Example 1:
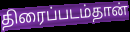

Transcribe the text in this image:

திரைப்படம்தான்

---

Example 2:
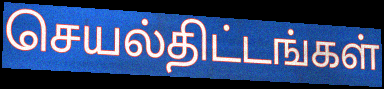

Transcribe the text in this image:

செயல்திட்டங்கள்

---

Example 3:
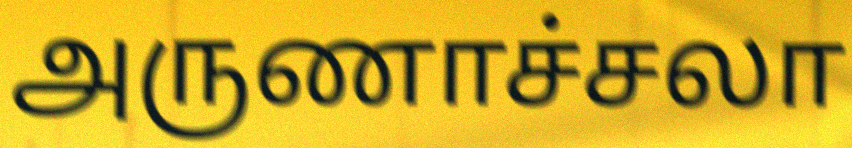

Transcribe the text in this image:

அருணாச்சலா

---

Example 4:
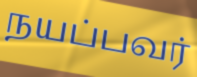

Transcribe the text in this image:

நயப்பவர்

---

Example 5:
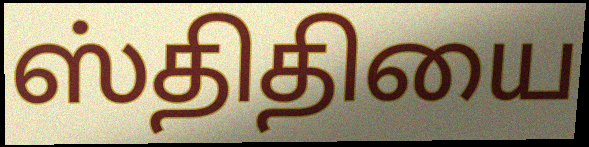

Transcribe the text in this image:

ஸ்திதியை